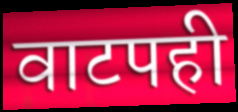
वाटपही